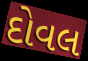
દોવલ